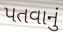
પતવાનું